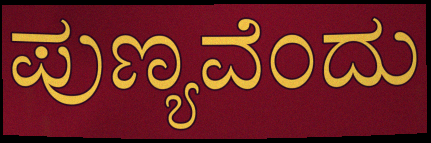
ಪುಣ್ಯವೆಂದು